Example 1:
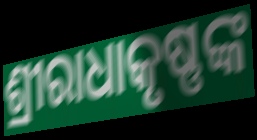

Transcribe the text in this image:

ଶ୍ରୀରାଧାକୃଷ୍ଣଙ୍କ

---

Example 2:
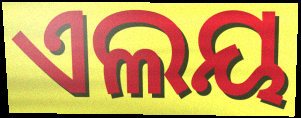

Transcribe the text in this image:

ଏଲୟ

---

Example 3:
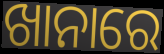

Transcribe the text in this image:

ଖାନାରେ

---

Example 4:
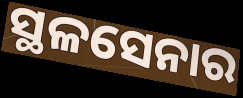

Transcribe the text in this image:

ସ୍ଥଳସେନାର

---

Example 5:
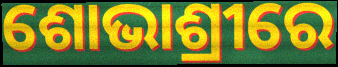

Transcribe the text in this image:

ଶୋଭାଶ୍ରୀରେ